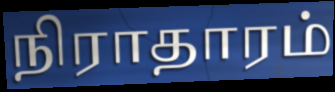
நிராதாரம்